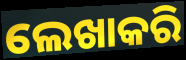
ଲେଖାକରି